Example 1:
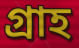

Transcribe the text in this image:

গ্রাহ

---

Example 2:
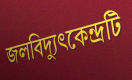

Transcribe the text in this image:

জলবিদ্যুৎকেন্দ্রটি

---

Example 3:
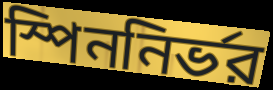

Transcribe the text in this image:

স্পিননির্ভর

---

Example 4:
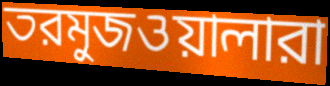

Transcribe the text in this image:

তরমুজওয়ালারা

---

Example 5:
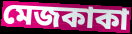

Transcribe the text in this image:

মেজকাকা